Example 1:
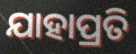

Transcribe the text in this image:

ଯାହାପ୍ରତି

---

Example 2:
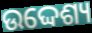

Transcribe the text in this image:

ଉଦ୍ଦେଶ୍ୟ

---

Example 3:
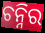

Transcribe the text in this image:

ଚନ୍ନିର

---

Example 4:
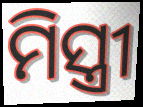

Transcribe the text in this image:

ମିସ୍ତ୍ରୀ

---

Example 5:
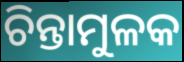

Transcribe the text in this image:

ଚିନ୍ତାମୁଳକ